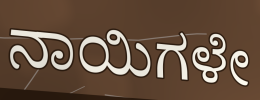
ನಾಯಿಗಳೇ